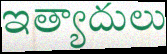
ఇత్యాదులు